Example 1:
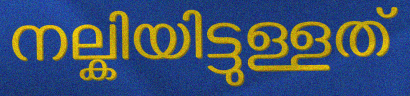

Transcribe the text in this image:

നല്കിയിട്ടുള്ളത്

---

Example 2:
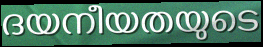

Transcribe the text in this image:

ദയനീയതയുടെ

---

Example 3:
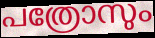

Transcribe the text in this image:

പത്രോസും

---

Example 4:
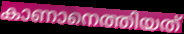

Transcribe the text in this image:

കാണാനെത്തിയത്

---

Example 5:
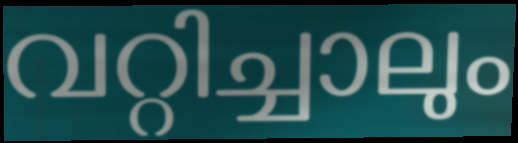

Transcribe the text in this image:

വറ്റിച്ചാലും